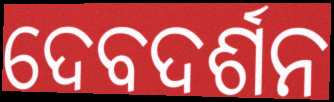
ଦେବଦର୍ଶନ